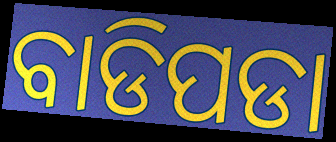
ବାଡିପଡା